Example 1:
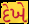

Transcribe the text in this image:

દેખે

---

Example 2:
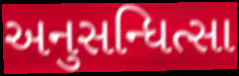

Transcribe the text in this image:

અનુસન્ધિત્સા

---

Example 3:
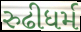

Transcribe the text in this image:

રુઢીધર્મ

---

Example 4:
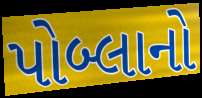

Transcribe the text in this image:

પોબ્લાનો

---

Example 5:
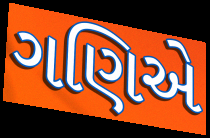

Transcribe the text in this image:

ગણિએ